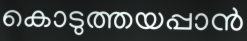
കൊടുത്തയപ്പാൻ